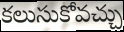
కలుసుకోవచ్చు